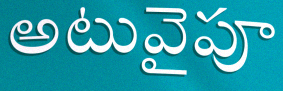
అటువైపూ